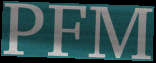
PFM